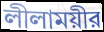
লীলাময়ীর